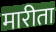
मारीता